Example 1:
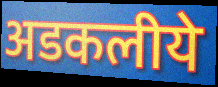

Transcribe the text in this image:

अडकलीये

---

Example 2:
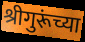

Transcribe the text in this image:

श्रीगुरूंच्या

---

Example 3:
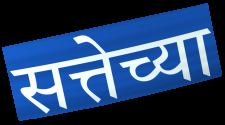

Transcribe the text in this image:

सत्तेच्या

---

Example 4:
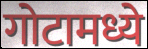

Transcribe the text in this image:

गोटामध्ये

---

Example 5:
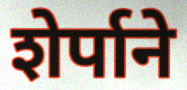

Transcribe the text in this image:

शेर्पाने